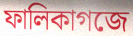
ফালিকাগজে